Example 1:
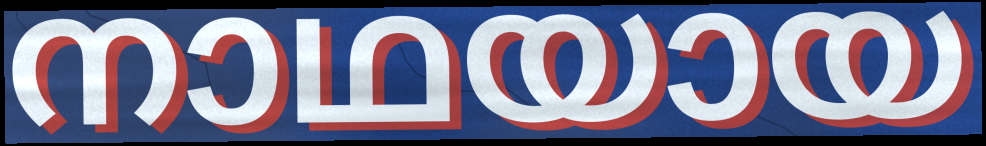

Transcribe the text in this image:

നാഥയായ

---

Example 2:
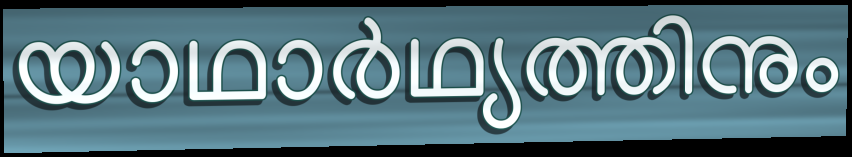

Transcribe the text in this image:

യാഥാർഥ്യത്തിനും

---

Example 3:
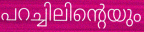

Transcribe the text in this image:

പറച്ചിലിന്റെയും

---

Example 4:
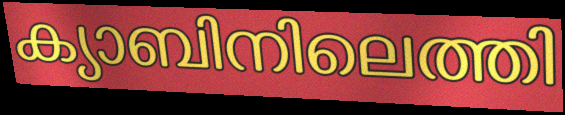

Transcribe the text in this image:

ക്യാബിനിലെത്തി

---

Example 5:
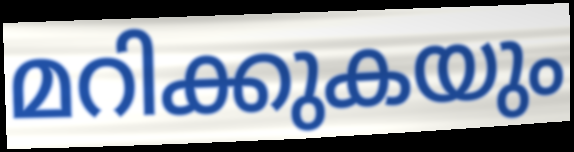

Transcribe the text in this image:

മറിക്കുകയും